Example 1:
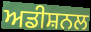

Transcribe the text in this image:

ਅਡੀਸ਼ਨਲ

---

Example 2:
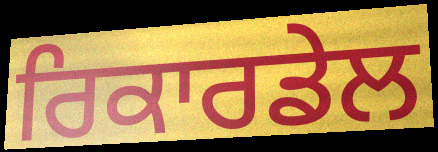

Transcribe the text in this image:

ਰਿਕਾਰਡੇਲ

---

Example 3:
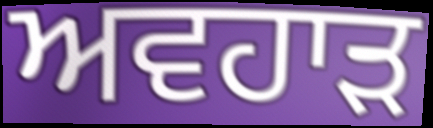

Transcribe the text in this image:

ਅਵਹਾੜ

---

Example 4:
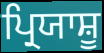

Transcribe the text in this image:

ਪ੍ਰਿਯਾਸ਼ੂ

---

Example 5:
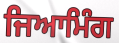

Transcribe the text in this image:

ਜਿਆਮਿੰਗ